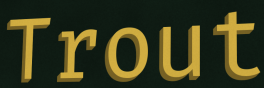
Trout